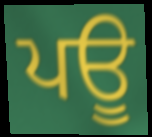
ਪਊ